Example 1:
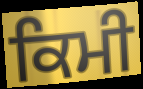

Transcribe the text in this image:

ਕਿਮੀ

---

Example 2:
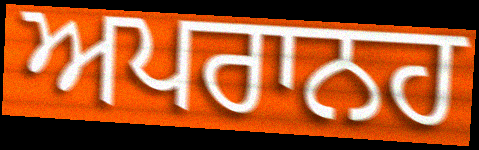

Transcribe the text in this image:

ਅਪਰਾਨਹ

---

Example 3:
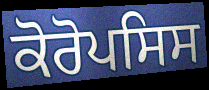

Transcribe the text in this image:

ਕੋਰੋਪਸਿਸ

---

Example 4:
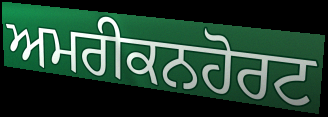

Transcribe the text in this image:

ਅਮਰੀਕਨਹੋਰਟ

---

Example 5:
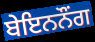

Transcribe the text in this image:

ਬੇਇਨਨੌੰਗ